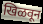
खिळवून